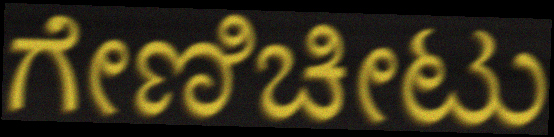
ಗೇಣಿಚೀಟು